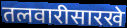
तलवारीसारखे